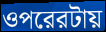
ওপরেরটায়